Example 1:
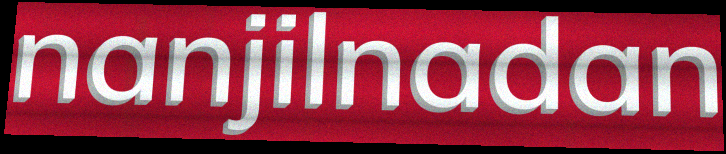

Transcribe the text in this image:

nanjilnadan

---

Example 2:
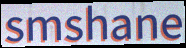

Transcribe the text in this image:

smshane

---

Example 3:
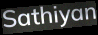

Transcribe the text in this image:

Sathiyan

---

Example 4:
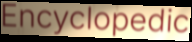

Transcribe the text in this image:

Encyclopedic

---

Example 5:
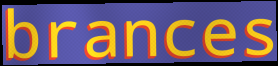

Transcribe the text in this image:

brances